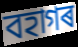
বহাগৰ